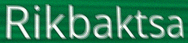
Rikbaktsa